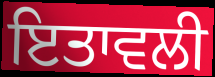
ਇਤਾਵਲੀ